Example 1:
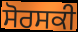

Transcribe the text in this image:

ਸੋਰਸਕੀ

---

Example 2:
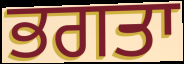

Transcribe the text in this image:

ਭਗਤਾ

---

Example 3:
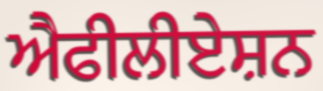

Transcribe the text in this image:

ਐਫੀਲੀਏਸ਼ਨ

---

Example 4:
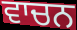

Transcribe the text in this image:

ਵਾਚਨ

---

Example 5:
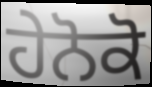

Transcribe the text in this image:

ਹੇਨੋਕੋ